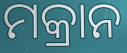
ମକ୍ରାନ